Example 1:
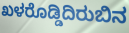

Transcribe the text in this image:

ಖಳರೊಡ್ಡಿದಿರುಬಿನ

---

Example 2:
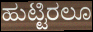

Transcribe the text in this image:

ಹುಟ್ಟಿರಲೂ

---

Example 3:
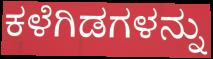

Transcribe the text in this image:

ಕಳೆಗಿಡಗಳನ್ನು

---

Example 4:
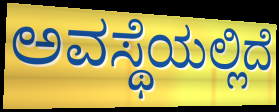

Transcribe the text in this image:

ಅವಸ್ಥೆಯಲ್ಲಿದೆ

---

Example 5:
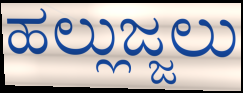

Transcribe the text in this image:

ಹಲ್ಲುಜ್ಜಲು